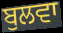
ਬੁਲਵਾ